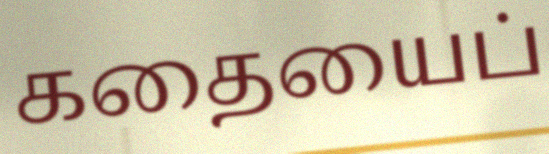
கதையைப்